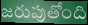
జరుపుతోంది